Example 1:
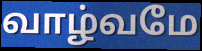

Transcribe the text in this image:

வாழ்வமே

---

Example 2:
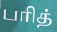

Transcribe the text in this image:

பரித்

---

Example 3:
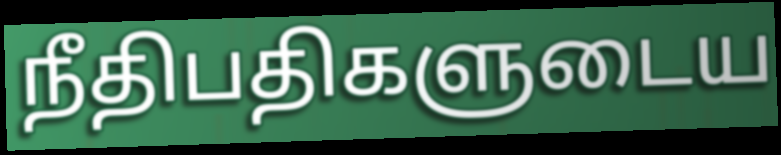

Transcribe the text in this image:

நீதிபதிகளுடைய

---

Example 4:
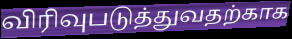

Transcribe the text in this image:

விரிவுபடுத்துவதற்காக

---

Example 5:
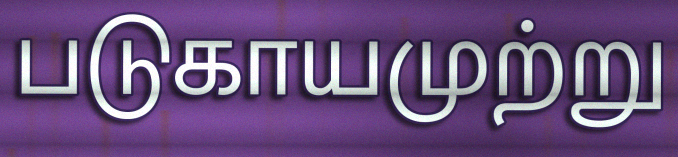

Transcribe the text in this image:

படுகாயமுற்று